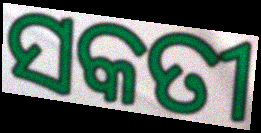
ସକତୀ